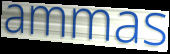
ammas